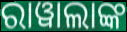
ରାୱାଲାଙ୍କ